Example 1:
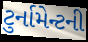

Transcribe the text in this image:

ટુર્નામેન્ટની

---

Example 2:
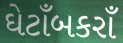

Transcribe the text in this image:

ઘેટાઁબકરાઁ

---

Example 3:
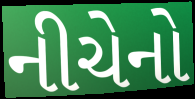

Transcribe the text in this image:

નીચેનો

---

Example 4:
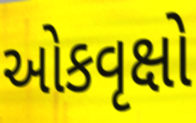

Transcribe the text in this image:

ઓકવૃક્ષો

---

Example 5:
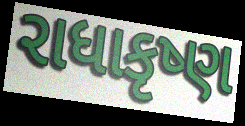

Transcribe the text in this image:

રાધાકૃષ્ણ